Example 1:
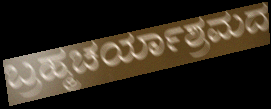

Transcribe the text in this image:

ಬ್ರಹ್ಮಚರ್ಯಾಶ್ರಮದ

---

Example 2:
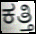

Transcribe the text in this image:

ಕತ್ತಿ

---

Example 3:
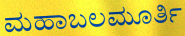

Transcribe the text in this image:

ಮಹಾಬಲಮೂರ್ತಿ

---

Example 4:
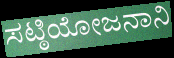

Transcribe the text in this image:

ಸಟ್ಠಿಯೋಜನಾನಿ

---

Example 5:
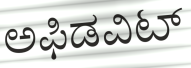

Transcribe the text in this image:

ಅಫಿಡವಿಟ್